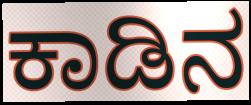
ಕಾಡಿನ